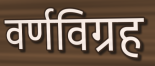
वर्णविग्रह